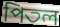
পিতল